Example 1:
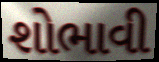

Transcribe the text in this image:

શોભાવી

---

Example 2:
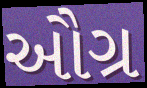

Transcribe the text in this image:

ઔગ્ર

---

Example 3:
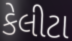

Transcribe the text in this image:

કેલીટા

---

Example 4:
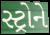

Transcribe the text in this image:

સ્ટ્રોને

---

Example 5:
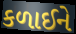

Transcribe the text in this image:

કળાઈને